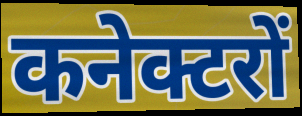
कनेक्टरों